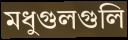
মধুগুলগুলি